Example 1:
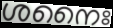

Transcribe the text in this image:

ശനൈഃ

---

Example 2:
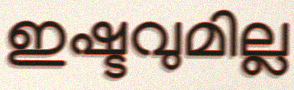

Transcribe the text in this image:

ഇഷ്ടവുമില്ല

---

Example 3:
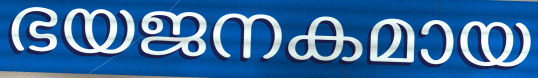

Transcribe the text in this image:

ഭയജനകമായ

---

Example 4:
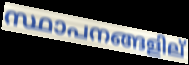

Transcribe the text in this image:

സ്ഥാപനങ്ങളില്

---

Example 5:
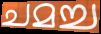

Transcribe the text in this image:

ചമച്ച